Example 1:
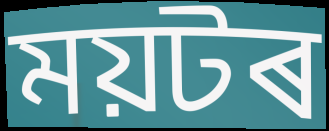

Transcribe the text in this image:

ময়টৰ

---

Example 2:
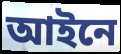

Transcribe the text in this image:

আইনে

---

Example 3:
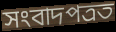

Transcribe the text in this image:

সংবাদপত্ৰত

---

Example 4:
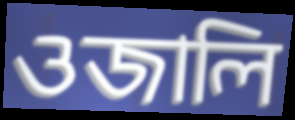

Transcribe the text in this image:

ওজালি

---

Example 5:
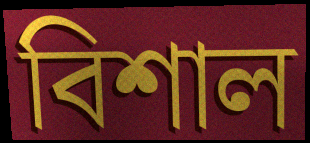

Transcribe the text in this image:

বিশাল